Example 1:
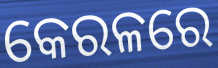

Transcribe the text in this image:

କେରଳରେ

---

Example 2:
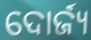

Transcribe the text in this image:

ଦୋର୍ଜ୍ୟ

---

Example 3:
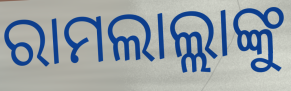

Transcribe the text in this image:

ରାମଲାଲ୍ଲାଙ୍କୁ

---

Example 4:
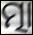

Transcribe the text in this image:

ତ୍ମା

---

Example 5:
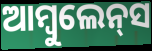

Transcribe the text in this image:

ଆମ୍ବୁଲେନ୍‌ସ